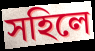
সহিলে